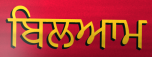
ਬਿਲਆਮ